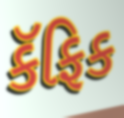
કૅફિક